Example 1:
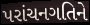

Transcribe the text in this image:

પરાંચનગતિને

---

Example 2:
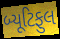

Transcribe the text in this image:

બ્યૂટિફુલ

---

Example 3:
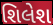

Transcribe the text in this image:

શિલેશ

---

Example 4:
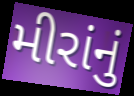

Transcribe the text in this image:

મીરાંનું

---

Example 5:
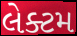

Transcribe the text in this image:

લેક્ટમ